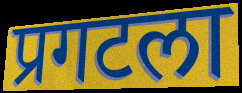
प्रगटला